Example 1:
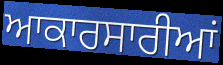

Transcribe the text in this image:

ਆਕਾਰਸਾਰੀਆਂ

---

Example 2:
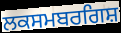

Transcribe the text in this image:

ਲਕਸਮਬਰਗਿਸ਼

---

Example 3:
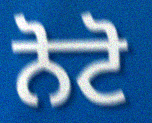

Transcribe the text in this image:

ਨੋਟੋ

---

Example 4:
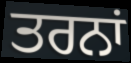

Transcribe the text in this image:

ਤਰਨਾਂ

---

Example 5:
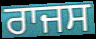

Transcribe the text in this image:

ਰਾਜਸ